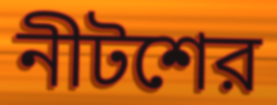
নীটশের